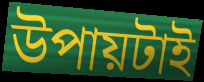
উপায়টাই